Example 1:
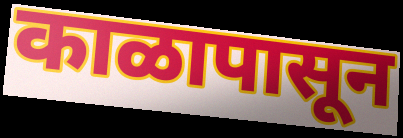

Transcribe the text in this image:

काळापासून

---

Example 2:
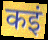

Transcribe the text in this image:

कइं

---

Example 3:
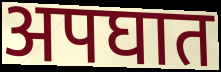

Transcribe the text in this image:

अपघात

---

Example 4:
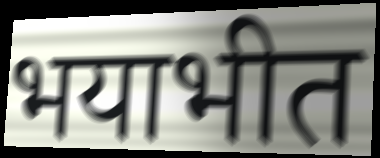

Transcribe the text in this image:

भयाभीत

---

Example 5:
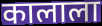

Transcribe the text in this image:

कालाला